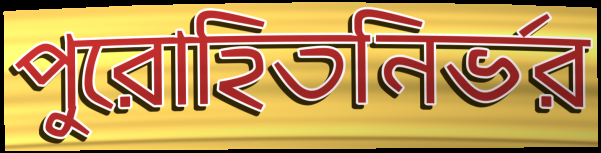
পুরোহিতনির্ভর